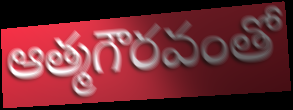
ఆత్మగౌరవంతో